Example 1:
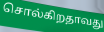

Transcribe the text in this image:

சொல்கிறதாவது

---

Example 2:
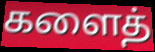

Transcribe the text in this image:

களைத்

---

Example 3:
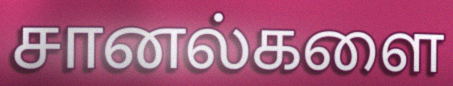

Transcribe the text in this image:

சானல்களை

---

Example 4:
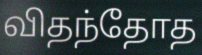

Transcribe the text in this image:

விதந்தோத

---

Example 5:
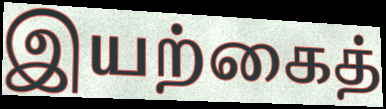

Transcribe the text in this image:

இயற்கைத்